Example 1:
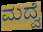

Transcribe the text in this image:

ಮದ್ವೆ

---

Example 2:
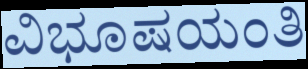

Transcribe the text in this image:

ವಿಭೂಷಯಂತಿ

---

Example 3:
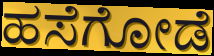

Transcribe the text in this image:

ಹಸೆಗೋಡೆ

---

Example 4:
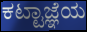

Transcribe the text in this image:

ಕಟ್ಟಾಜ್ಞೆಯ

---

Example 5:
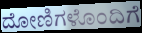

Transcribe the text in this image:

ದೋಣಿಗಳೊಂದಿಗೆ